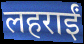
लहराईं